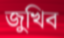
জুখিব